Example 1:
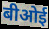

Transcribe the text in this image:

बीओई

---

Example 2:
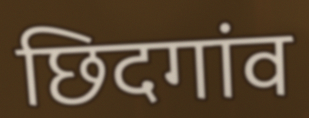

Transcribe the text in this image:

छिदगांव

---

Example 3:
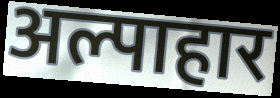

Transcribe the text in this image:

अल्पाहार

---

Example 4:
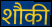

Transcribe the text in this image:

शौकी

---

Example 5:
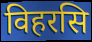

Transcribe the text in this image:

विहरसि